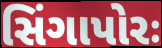
સિંગાપોરઃ